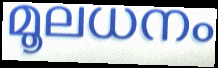
മൂലധനം